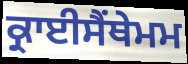
ਕ੍ਰਾਈਸੈਂਥੇਮਮ